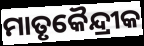
ମାତୃକୈନ୍ଦ୍ରୀକ